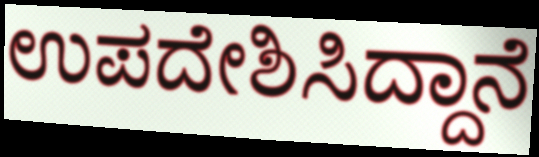
ಉಪದೇಶಿಸಿದ್ದಾನೆ